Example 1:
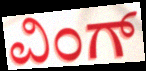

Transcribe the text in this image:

ವಿಂಗ್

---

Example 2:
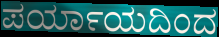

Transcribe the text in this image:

ಪರ್ಯಾಯದಿಂದ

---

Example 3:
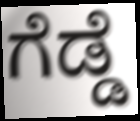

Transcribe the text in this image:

ಗೆಡ್ಡೆ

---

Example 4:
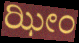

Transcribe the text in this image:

ಝೀಂ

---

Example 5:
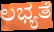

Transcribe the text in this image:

ಲಭ್ಯತೆ